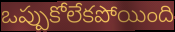
ఒప్పుకోలేకపోయింది